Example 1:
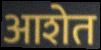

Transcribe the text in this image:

आशेत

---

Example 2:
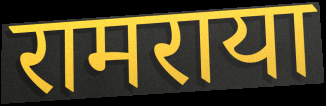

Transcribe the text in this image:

रामराया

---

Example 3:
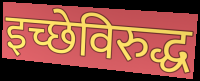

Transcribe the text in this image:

इच्छेविरुद्ध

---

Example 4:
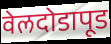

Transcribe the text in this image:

वेलदोडापूड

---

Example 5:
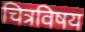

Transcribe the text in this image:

चित्रविषय